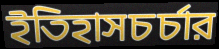
ইতিহাসচর্চার